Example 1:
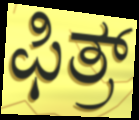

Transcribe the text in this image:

ಫಿತ್ರ್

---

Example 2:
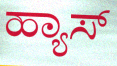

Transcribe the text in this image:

ಹ್ಯಾಸ್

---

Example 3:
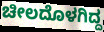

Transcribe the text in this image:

ಚೀಲದೊಳಗಿದ್ದ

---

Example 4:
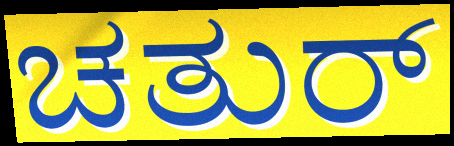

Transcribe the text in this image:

ಚತುರ್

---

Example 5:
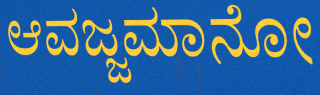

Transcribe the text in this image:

ಆವಜ್ಜಮಾನೋ